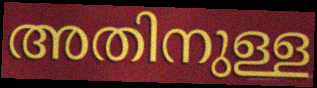
അതിനുള്ള